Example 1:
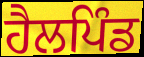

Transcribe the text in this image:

ਹੈਲਪਿੰਡ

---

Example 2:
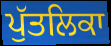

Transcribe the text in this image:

ਪੁੱਤਲਿਕਾ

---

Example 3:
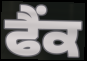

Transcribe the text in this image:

ਫੈਂਕ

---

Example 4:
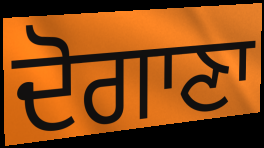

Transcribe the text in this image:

ਦੋਗਾਣਾ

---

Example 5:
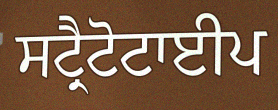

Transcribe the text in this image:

ਸਟ੍ਰੈਟੋਟਾਈਪ